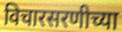
विचारसरणीच्या